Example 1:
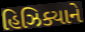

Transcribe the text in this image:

હિઝિક્યાને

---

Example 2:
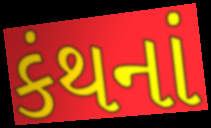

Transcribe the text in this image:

કંથનાં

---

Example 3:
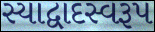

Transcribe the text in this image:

સ્યાદ્વાદસ્વરૂપ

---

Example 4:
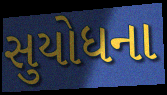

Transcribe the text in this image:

સુયોધના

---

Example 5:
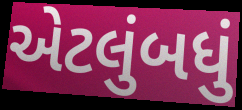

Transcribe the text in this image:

એટલુંબધું